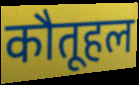
कौतूहल